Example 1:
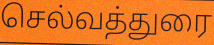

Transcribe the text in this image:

செல்வத்துரை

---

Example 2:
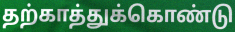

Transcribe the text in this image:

தற்காத்துக்கொண்டு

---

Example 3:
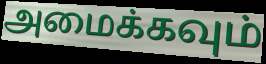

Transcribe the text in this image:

அமைக்கவும்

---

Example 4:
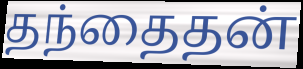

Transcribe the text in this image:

தந்தைதன்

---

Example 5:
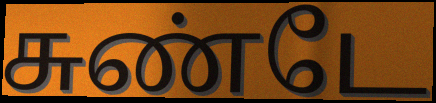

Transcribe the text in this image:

சுண்டே